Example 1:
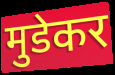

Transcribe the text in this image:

मुडेकर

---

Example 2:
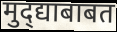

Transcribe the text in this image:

मुद्द्याबाबत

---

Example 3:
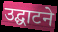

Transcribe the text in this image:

उद्घाटने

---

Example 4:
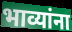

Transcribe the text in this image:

भाव्यांना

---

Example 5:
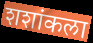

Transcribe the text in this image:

शशांकला